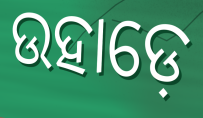
ଉହାଡ଼େ